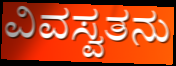
ವಿವಸ್ವತನು